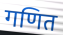
गणित